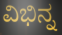
ವಿಭಿನ್ನ